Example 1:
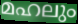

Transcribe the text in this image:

മഹലും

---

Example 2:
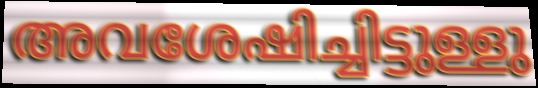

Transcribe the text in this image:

അവശേഷിച്ചിട്ടുള്ളു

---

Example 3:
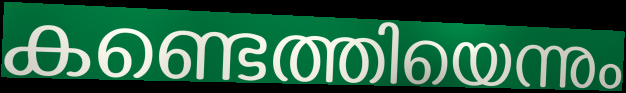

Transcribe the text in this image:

കണ്ടെത്തിയെന്നും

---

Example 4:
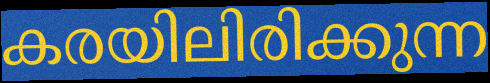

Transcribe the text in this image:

കരയിലിരിക്കുന്ന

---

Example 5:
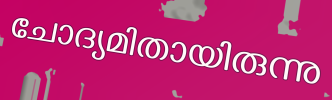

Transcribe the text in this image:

ചോദ്യമിതായിരുന്നു